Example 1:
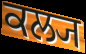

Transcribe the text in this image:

ਕਲ੍ਯ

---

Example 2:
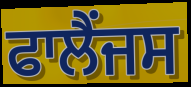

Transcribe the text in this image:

ਫਾਲੈਂਜਸ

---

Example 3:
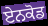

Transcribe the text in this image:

ਏਨਕੋਡ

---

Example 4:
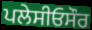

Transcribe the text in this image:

ਪਲੇਸੀਓਸੌਰ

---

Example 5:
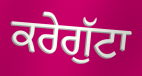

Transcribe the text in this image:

ਕਰੇਗੁੱਟਾ